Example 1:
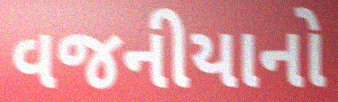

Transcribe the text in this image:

વજનીયાનો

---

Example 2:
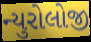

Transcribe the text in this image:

ન્યુરોલોજી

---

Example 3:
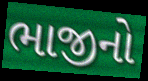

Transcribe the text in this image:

ભાજીનો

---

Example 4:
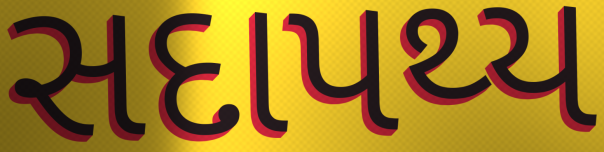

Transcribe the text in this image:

સદાપથ્ય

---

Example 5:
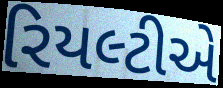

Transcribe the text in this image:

રિયલ્ટીએ